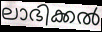
ലാഭിക്കൽ